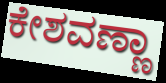
ಕೇಶವಣ್ಣಾ